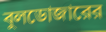
বুলডোজারের